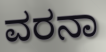
ವರನಾ